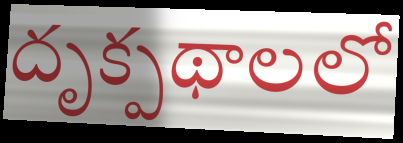
దృక్పథాలలో